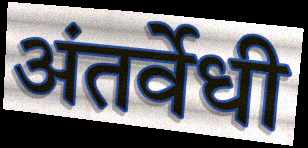
अंतर्वेधी